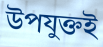
উপযুক্তই